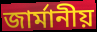
জাৰ্মানীয়